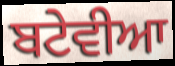
ਬਟੇਵੀਆ